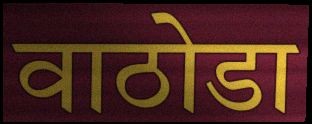
वाठोडा